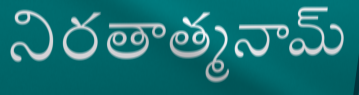
నిరతాత్మనామ్